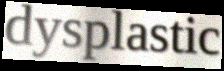
dysplastic